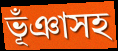
ভূঁঞাসহ